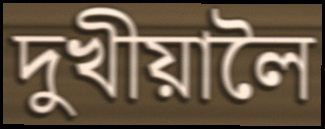
দুখীয়ালৈ